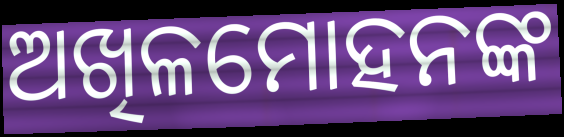
ଅଖିଳମୋହନଙ୍କ